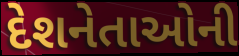
દેશનેતાઓની